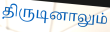
திருடினாலும்